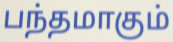
பந்தமாகும்